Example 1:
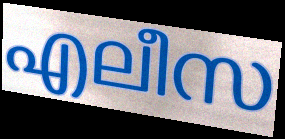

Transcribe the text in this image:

എലീസ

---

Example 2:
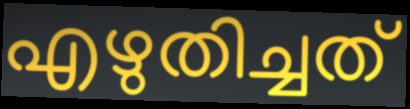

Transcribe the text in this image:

എഴുതിച്ചത്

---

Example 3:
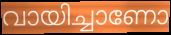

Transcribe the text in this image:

വായിച്ചാണോ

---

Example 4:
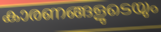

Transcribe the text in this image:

കാരണങ്ങളുടെയും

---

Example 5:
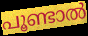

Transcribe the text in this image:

പൂണ്ടാൽ